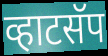
व्हाटसॅप